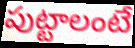
పుట్టాలంటే